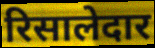
रिसालेदार